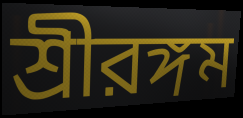
শ্রীরঙ্গম